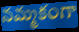
నమ్మకంగా